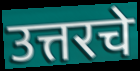
उत्तरचे